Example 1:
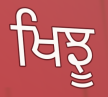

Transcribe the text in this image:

ਖਿਝੂ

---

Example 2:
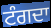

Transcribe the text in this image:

ਟੰਗਦਾ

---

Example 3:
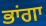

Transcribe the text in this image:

ਭਾਂਗਾ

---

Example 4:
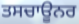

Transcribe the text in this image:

ਤਸਚਾਊਨਰ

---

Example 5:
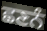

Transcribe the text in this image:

ਛਣਨੰ